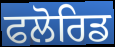
ਫਲੋਰਿਡ